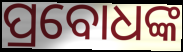
ପ୍ରବୋଧଙ୍କ